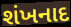
શંખનાદ